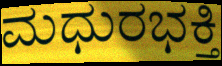
ಮಧುರಭಕ್ತಿ